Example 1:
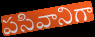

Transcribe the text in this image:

పసివానిగా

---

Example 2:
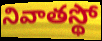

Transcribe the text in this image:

నివాతస్థో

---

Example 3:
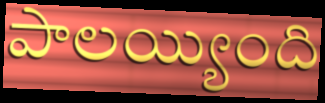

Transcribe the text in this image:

పాలయ్యింది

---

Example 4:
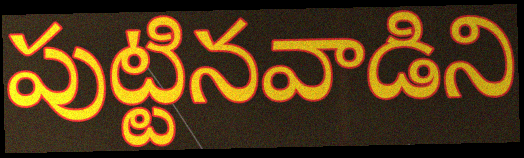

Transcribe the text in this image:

పుట్టినవాడిని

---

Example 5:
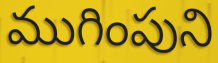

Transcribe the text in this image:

ముగింపుని